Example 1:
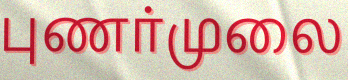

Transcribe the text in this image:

புணர்முலை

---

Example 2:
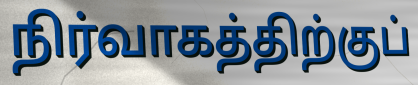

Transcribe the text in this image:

நிர்வாகத்திற்குப்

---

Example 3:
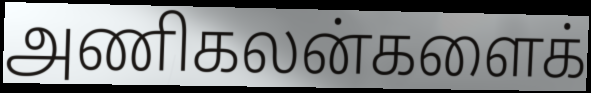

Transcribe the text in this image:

அணிகலன்களைக்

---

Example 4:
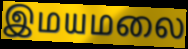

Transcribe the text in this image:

இமயமலை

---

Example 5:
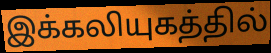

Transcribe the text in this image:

இக்கலியுகத்தில்